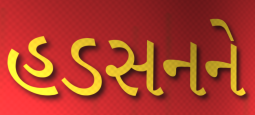
હડસનને